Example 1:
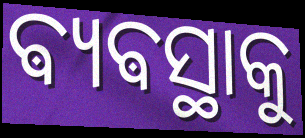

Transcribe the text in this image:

ଵ୍ୟଵସ୍ଥାକୁ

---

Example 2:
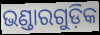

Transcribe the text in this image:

ଭଣ୍ଡାରଗୁଡ଼ିକ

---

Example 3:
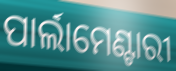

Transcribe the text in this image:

ପାର୍ଲାମେଣ୍ଟାରୀ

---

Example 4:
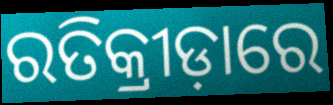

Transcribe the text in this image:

ରତିକ୍ରୀଡ଼ାରେ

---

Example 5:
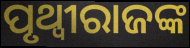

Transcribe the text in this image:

ପୃଥ୍ଵୀରାଜଙ୍କ